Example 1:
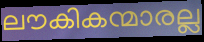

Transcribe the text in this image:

ലൗകികന്മാരല്ല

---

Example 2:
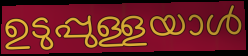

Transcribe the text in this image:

ഉടുപ്പുള്ളയാൾ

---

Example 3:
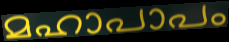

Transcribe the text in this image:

മഹാപാപം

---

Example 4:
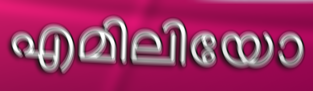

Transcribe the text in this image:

എമിലിയോ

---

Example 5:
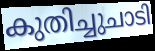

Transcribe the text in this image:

കുതിച്ചുചാടി